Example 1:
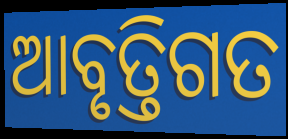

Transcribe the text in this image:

ଆବୃତ୍ତିଗତ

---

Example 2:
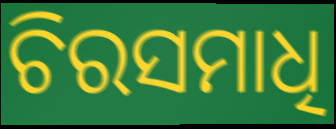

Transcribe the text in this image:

ଚିରସମାଧି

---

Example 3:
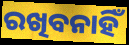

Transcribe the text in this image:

ରଖିବନାହିଁ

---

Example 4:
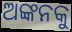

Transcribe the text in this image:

ଅଙ୍କନକୁ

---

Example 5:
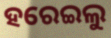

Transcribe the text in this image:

ହରେଇଲୁ